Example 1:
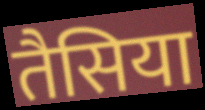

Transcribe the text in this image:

तैसिया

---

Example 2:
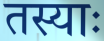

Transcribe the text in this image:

तस्याः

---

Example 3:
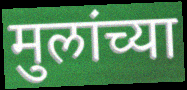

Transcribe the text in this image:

मुलांच्या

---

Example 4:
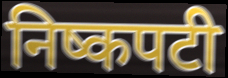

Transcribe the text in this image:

निष्कपटी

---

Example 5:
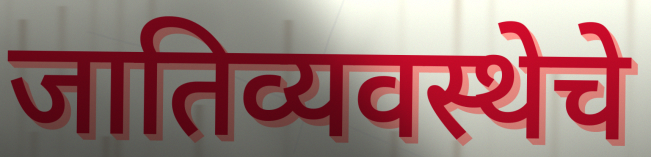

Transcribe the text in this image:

जातिव्यवस्थेचे